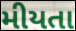
મીયતા